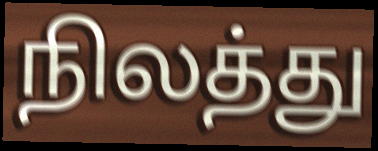
நிலத்து